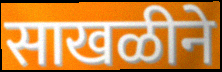
साखळीने